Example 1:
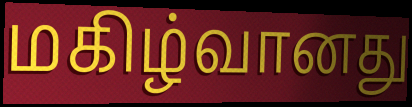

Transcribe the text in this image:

மகிழ்வானது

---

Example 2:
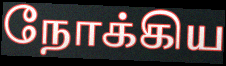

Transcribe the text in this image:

நோக்கிய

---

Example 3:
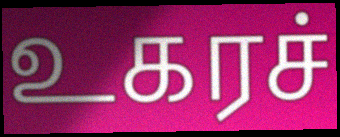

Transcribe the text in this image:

உகரச்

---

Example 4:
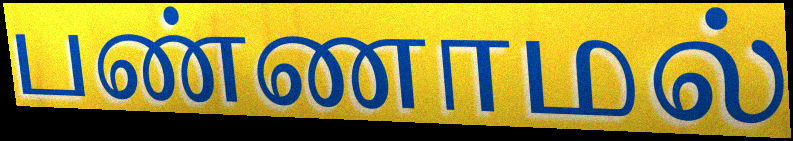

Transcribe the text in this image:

பண்ணாமல்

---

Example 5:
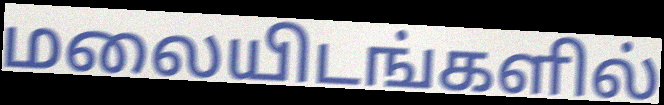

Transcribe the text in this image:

மலையிடங்களில்